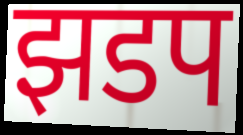
झडप